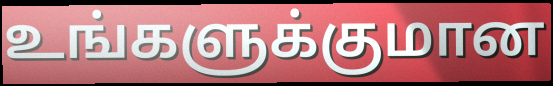
உங்களுக்குமான